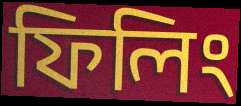
ফিলিং